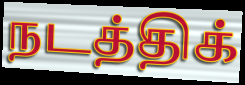
நடத்திக்